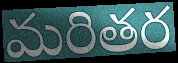
మరితర